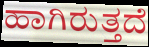
ಹಾಗಿರುತ್ತದೆ